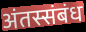
अंतस्संबंध